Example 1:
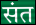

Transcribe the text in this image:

संत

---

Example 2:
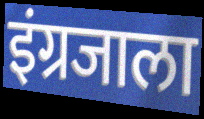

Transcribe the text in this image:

इंग्रजाला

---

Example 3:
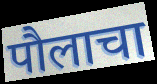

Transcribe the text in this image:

पौलाचा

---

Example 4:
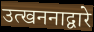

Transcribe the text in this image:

उत्खननाद्वारे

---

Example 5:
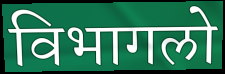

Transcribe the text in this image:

विभागलो